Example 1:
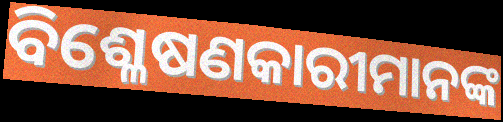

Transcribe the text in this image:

ବିଶ୍ଳେଷଣକାରୀମାନଙ୍କ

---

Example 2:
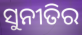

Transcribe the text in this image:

ସୁନୀତିର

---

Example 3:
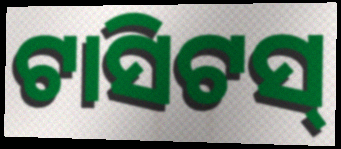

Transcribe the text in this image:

ଟାସିଟସ୍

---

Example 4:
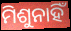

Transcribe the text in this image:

ମିଶୁନାହିଁ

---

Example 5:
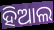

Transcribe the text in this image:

ହିଆଲ